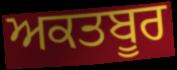
ਅਕਤਬੂਰ